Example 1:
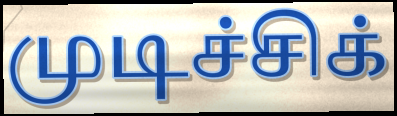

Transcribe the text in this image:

முடிச்சிக்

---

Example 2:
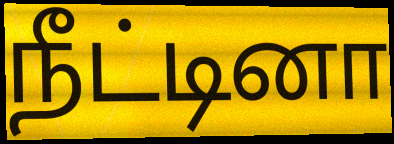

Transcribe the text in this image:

நீட்டினா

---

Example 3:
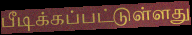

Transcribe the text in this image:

பீடிக்கப்பட்டுள்ளது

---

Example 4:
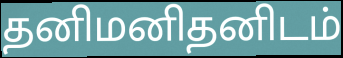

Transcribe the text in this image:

தனிமனிதனிடம்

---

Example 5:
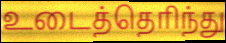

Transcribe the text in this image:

உடைத்தெரிந்து